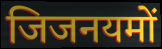
जिजनयमों